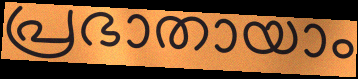
പ്രഭാതായാം